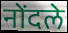
नोंदले